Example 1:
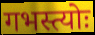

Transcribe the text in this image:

गभस्त्योः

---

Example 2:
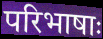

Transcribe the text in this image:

परिभाषाः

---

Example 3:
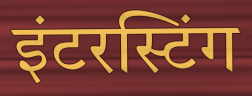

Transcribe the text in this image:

इंटरस्टिंग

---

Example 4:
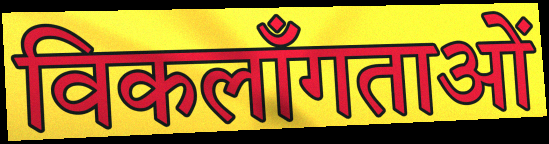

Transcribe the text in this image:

विकलाँगताओं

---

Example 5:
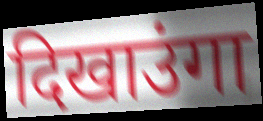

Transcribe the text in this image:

दिखाउंगा